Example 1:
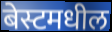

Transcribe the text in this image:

बेस्टमधील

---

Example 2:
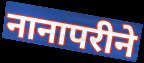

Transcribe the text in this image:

नानापरीने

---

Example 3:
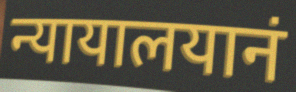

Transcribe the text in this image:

न्यायालयानं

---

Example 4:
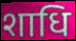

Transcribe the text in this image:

शाधि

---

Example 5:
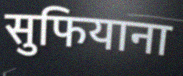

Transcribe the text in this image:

सुफियाना